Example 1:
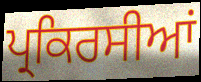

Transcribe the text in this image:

ਪ੍ਰਕਿਰਸੀਆਂ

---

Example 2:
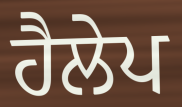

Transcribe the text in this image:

ਹੈਲੇਪ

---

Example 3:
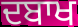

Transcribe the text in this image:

ਦਬਾਖ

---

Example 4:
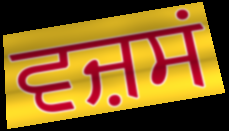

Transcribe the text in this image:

ਵਜ਼ਸਂ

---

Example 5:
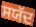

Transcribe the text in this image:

ਸਯੱਦ